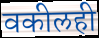
वकीलही